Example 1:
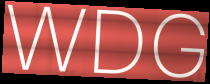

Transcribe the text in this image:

WDG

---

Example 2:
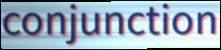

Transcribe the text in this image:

conjunction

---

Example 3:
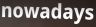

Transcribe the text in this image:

nowadays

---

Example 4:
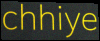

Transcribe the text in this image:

chhiye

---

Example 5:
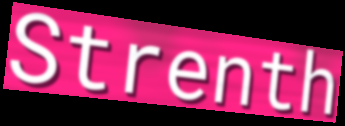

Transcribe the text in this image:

Strenth